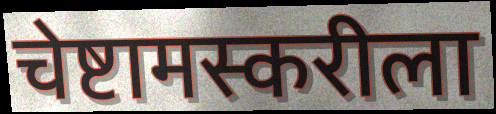
चेष्टामस्करीला